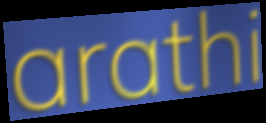
arathi